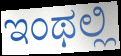
ಇಂಥಲ್ಲಿ